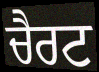
ਚੈਰਟ